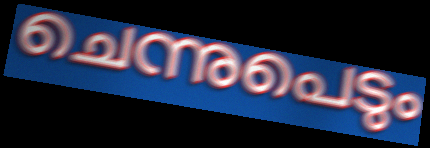
ചെന്നുപെടും